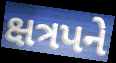
ક્ષત્રપને